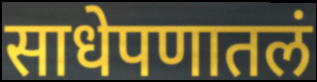
साधेपणातलं